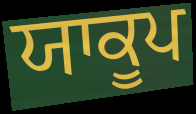
ਯਾਕੂਪ